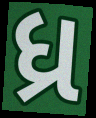
ધ્ર